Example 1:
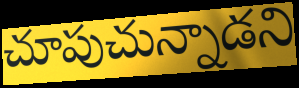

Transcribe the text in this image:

చూపుచున్నాడని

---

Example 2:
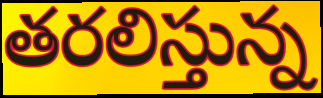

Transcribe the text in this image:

తరలిస్తున్న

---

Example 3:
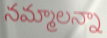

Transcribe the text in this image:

నమ్మాలన్నా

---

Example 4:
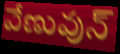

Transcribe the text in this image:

వేణువున్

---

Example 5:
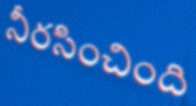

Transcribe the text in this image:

నీరసించింది